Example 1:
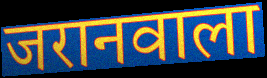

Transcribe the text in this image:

जरानवाला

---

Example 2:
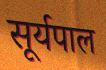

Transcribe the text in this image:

सूर्यपाल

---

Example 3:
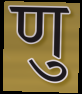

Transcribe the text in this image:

णु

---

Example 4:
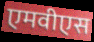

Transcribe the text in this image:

एमवीएस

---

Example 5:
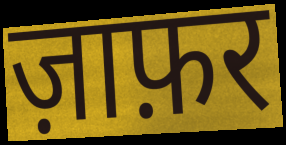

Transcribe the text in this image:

ज़ाफ़र